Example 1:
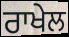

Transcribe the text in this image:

ਰਾਖੇਲ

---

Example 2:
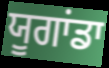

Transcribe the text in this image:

ਯੂਗਾਂਡਾ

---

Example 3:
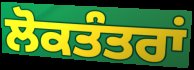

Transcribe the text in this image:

ਲੋਕਤੰਤਰਾਂ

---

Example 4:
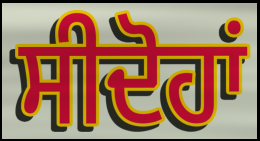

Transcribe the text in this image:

ਸੀਦੋਹਾਂ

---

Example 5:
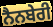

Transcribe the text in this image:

ਨੈਨਬੇਰੀ